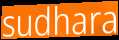
sudhara